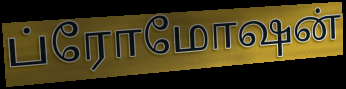
ப்ரோமோஷன்